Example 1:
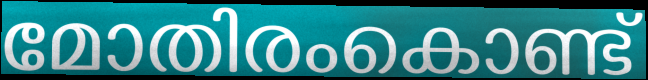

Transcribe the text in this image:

മോതിരംകൊണ്ട്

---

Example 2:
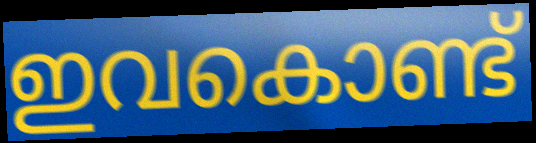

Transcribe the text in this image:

ഇവകൊണ്ട്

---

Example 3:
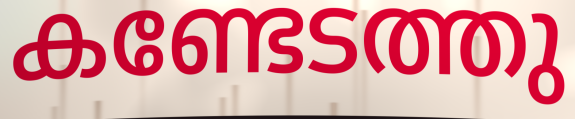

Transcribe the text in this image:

കണ്ടേടത്തു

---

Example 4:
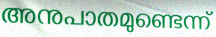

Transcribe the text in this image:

അനുപാതമുണ്ടെന്ന്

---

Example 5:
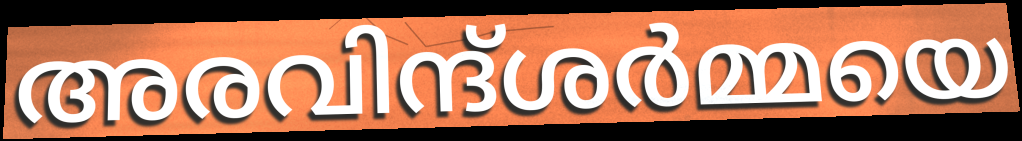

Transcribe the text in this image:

അരവിന്ദ്ശർമ്മയെ